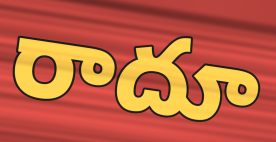
రాదూ